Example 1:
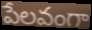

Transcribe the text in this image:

పేలవంగా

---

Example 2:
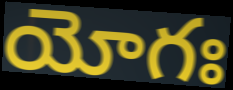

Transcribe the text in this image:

యోగః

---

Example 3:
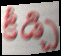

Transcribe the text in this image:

కీడ్చి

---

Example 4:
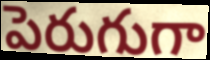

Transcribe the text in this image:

పెరుగుగా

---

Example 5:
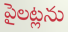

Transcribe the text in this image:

పైలట్లను